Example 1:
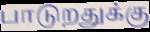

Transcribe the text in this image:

பாடுறதுக்கு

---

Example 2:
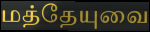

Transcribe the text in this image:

மத்தேயுவை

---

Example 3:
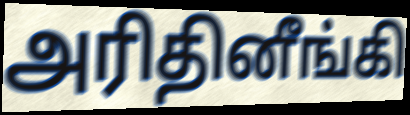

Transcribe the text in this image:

அரிதினீங்கி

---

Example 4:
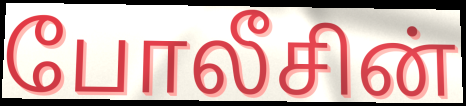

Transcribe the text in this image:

போலீசின்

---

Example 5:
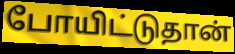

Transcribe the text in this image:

போயிட்டுதான்